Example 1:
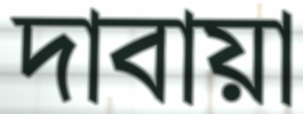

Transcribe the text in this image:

দাবায়া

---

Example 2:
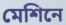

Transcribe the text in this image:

মেশিনে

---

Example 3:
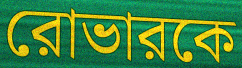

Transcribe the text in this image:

রোভারকে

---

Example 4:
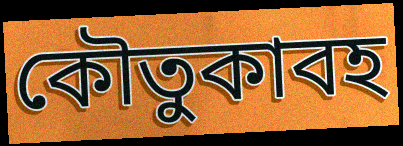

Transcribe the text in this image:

কৌতুকাবহ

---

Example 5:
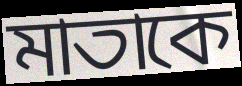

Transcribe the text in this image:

মাতাকে